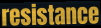
resistance